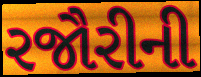
રજૌરીની